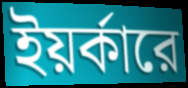
ইয়র্কারে